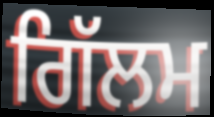
ਗਿੱਲਮ